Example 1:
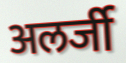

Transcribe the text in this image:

अलर्जी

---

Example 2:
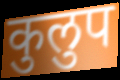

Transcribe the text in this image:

कुलुप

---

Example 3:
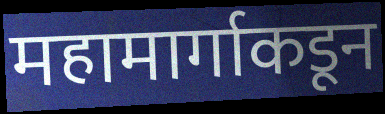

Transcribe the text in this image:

महामार्गाकडून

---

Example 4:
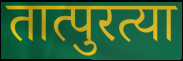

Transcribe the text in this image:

तात्पुरत्या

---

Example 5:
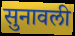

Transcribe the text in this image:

सुनावली